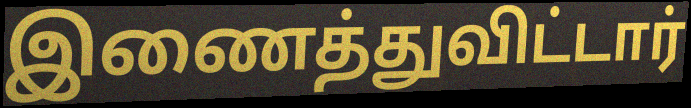
இணைத்துவிட்டார்